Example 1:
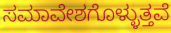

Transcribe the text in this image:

ಸಮಾವೇಶಗೊಳ್ಳುತ್ತವೆ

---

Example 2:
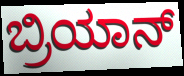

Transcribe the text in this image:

ಬ್ರಿಯಾನ್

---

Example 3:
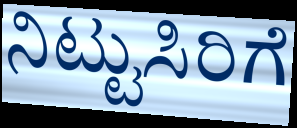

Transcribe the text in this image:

ನಿಟ್ಟುಸಿರಿಗೆ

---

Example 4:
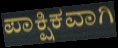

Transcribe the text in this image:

ಪಾಕ್ಷಿಕವಾಗಿ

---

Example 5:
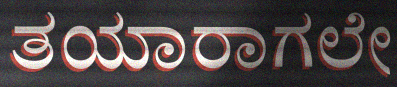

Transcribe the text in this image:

ತಯಾರಾಗಲೇ